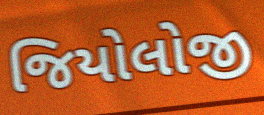
જિયોલોજી